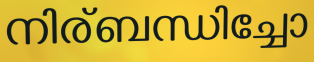
നിര്ബന്ധിച്ചോ